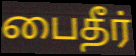
பைதீர்